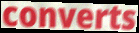
converts